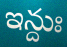
ఇన్దుః